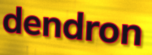
dendron